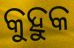
କୁହୁକ